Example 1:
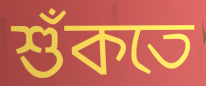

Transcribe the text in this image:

শুঁকতে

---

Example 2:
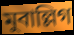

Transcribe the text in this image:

মুবাল্লিগ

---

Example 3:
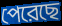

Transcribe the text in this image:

পেরেছে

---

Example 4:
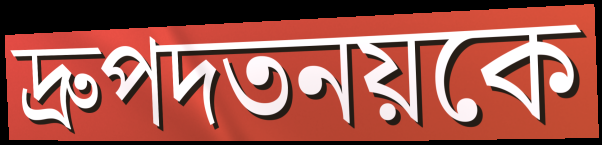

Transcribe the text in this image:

দ্রুপদতনয়কে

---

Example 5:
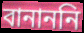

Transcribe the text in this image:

বানাননি